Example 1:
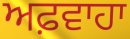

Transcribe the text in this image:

ਅਫ਼ਵਾਹਾ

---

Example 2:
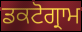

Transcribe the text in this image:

ਡਕਟੋਗ੍ਰਾਮ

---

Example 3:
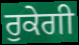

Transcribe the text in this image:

ਰੁਕੇਗੀ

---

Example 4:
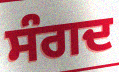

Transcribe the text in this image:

ਸੰਗਦ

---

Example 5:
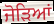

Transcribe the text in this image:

ਜੋੜਿਆਂ